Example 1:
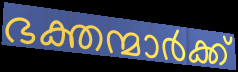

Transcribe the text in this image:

ഭക്തന്മാർക്ക്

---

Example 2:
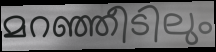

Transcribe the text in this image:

മറഞ്ഞീടിലും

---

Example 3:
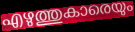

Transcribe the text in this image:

എഴുത്തുകാരെയും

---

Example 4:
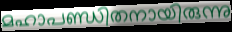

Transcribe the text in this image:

മഹാപണ്ഡിതനായിരുന്നു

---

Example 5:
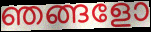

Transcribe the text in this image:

ഞങ്ങളോ